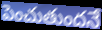
పెంచుతుందనే